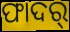
ଫାଦର୍